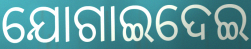
ଯୋଗାଇଦେଇ